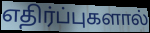
எதிர்ப்புகளால்